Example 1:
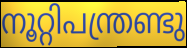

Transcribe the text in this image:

നൂറ്റിപന്ത്രണ്ടു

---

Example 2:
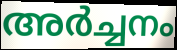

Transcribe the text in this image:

അർച്ചനം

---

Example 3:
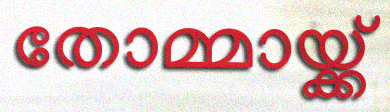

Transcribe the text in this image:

തോമ്മായ്ക്ക്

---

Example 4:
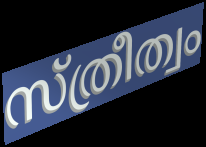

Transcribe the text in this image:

സ്ത്രീത്വം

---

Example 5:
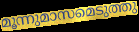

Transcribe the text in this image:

മൂന്നുമാസമെടുത്തു